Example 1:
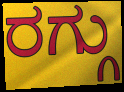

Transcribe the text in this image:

ರಗ್ಗು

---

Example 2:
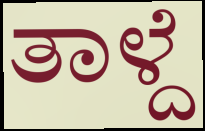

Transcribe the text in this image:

ತಾಳ್ದೆ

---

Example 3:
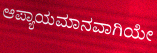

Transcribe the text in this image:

ಆಪ್ಯಾಯಮಾನವಾಗಿಯೇ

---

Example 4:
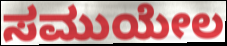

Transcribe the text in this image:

ಸಮುಯೇಲ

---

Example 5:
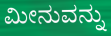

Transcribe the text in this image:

ಮೀನುವನ್ನು